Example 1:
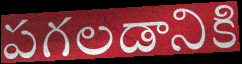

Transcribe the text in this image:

పగలడానికి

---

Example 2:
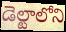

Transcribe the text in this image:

డెల్టాలోని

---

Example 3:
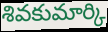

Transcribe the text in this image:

శివకుమార్కి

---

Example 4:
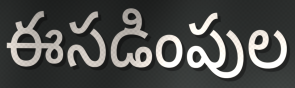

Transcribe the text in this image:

ఈసడింపుల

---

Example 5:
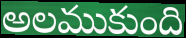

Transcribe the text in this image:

అలముకుంది